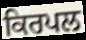
ਕਿਰਪਲ